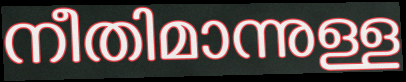
നീതിമാന്നുള്ള